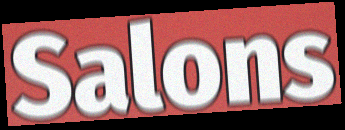
Salons